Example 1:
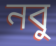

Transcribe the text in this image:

নবু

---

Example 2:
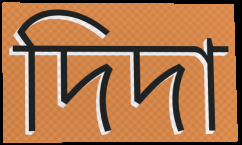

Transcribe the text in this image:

দিদা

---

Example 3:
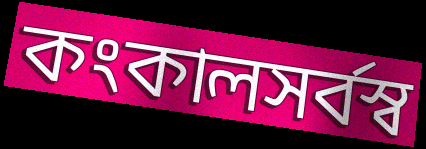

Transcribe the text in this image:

কংকালসর্বস্ব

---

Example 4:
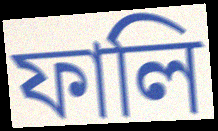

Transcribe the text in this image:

ফালি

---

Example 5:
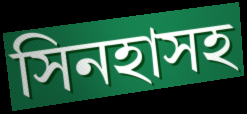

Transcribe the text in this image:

সিনহাসহ